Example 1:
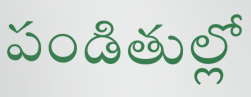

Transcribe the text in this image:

పండితుల్లో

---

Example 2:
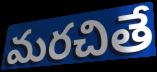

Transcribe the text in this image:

మరచితే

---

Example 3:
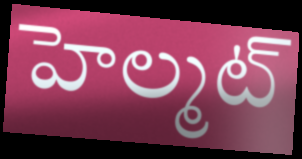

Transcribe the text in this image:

హెల్మట్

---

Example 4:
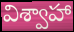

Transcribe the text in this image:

విశ్వాహా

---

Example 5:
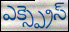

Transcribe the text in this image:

ఎక్స్ప్రెస్